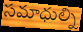
సమాధుల్ని